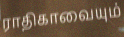
ராதிகாவையும்